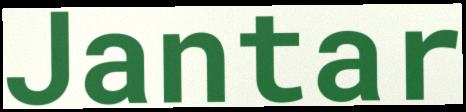
Jantar